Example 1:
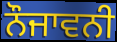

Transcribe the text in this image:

ਨੌਜਾਵਨੀ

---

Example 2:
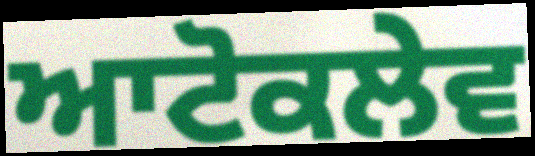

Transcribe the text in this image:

ਆਟੋਕਲੇਵ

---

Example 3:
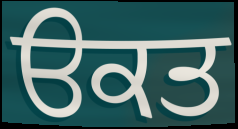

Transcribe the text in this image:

ੳਕਤ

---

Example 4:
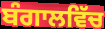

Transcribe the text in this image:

ਬੰਗਾਲਵਿੱਚ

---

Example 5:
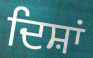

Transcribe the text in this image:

ਦਿਸ਼ਾਂ